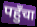
पहुँचा